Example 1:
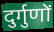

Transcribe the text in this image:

दुर्गुणों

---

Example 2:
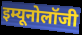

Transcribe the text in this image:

इम्यूनोलॉजी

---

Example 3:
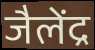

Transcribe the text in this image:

जैलेंद्र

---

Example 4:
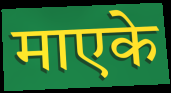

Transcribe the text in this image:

माएके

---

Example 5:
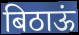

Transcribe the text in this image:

बिठाऊं